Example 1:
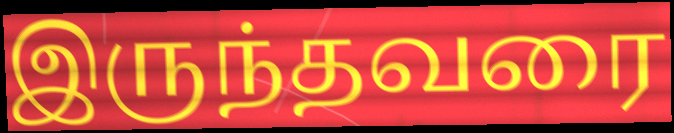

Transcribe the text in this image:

இருந்தவரை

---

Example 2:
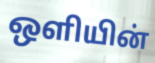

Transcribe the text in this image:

ஒளியின்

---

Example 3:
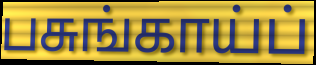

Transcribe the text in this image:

பசுங்காய்ப்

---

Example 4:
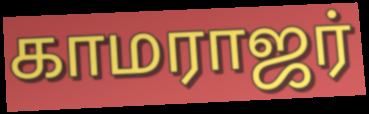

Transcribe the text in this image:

காமராஜர்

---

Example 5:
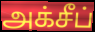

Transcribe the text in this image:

அக்சீப்